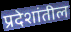
प्रदेशांतील